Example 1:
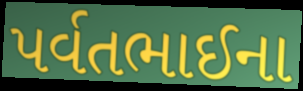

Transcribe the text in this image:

પર્વતભાઈના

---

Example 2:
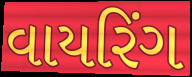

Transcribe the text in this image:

વાયરિંગ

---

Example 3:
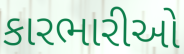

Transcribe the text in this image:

કારભારીઓ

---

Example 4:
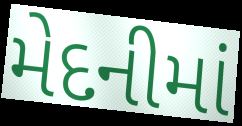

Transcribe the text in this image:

મેદનીમાં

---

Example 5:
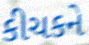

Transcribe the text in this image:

કીચકને